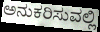
ಅನುಕರಿಸುವಲ್ಲಿ